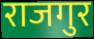
राजगुर